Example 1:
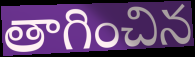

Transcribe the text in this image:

తాగించిన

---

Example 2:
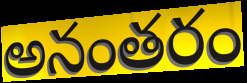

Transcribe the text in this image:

అనంతరం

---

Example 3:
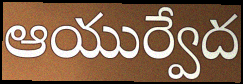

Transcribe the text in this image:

ఆయుర్వేద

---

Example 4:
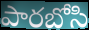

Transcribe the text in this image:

పారబోసి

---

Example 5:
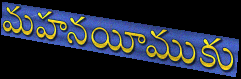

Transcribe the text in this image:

మహనయీముకు